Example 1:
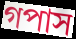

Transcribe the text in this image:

গপাস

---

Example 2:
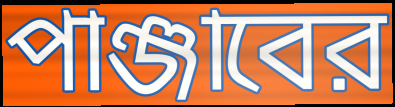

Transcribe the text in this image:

পাঞ্জাবের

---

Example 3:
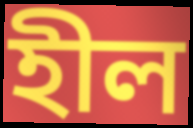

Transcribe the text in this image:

হীল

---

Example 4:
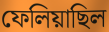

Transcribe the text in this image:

ফেলিয়াছিল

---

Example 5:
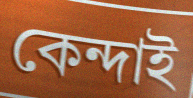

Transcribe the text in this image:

কেন্দাই